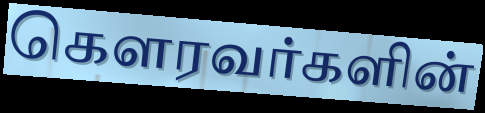
கௌரவர்களின்